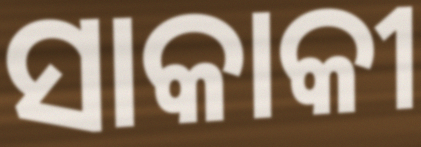
ସାକାକୀ